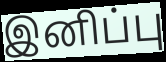
இனிப்பு